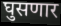
घुसणार